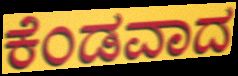
ಕೆಂಡವಾದ